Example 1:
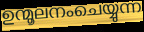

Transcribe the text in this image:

ഉന്മൂലനംചെയ്യുന്ന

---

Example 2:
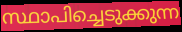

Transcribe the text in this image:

സ്ഥാപിച്ചെടുക്കുന്ന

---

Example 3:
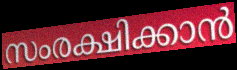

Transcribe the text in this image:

സംരക്ഷിക്കാൻ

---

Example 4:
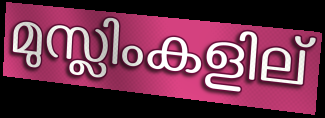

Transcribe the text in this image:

മുസ്ലിംകളില്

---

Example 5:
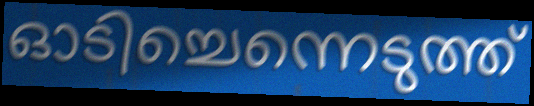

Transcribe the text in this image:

ഓടിച്ചെന്നെടുത്ത്